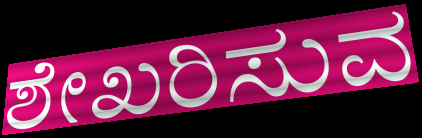
ಶೇಖರಿಸುವ